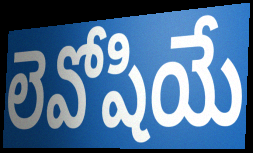
లెవోషియే